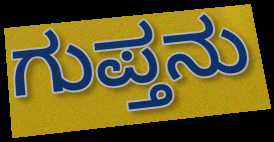
ಗುಪ್ತನು